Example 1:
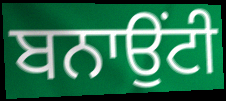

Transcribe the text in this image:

ਬਨਾਉਂਟੀ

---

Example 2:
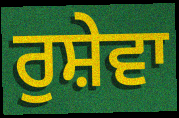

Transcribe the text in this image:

ਰੁਸ਼ੇਵਾ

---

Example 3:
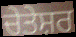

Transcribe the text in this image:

ਚੇਤੇਸ਼ਰ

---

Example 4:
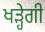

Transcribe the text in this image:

ਖੜ੍ਹੇਗੀ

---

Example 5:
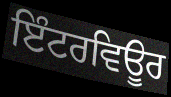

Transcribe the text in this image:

ਇੰਟਰਵਿਊਰ